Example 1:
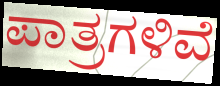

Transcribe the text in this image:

ಪಾತ್ರಗಳಿವೆ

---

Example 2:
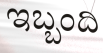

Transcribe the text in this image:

ಇಬ್ಬಂದಿ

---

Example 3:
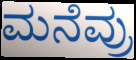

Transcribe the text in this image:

ಮನೆವ್ರು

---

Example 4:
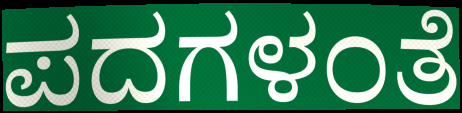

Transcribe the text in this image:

ಪದಗಳಂತೆ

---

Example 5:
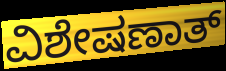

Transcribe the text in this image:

ವಿಶೇಷಣಾತ್